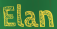
Elan